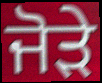
ਜੋਡ਼ੇ